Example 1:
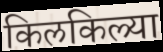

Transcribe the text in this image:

किलकिल्या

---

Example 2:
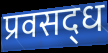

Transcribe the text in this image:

प्रवसद्ध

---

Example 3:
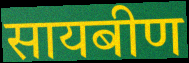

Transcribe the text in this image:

सायबीण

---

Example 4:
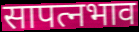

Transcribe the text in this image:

सापत्नभाव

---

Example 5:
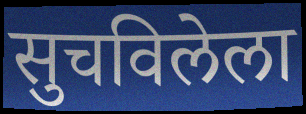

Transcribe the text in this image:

सुचविलेला